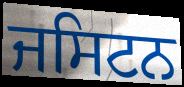
ਜਸਿਟਨ